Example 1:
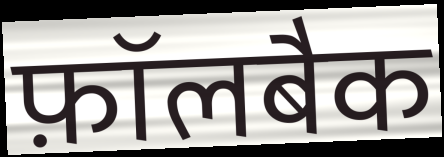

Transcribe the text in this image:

फ़ॉलबैक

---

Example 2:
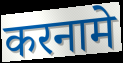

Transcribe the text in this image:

करनामे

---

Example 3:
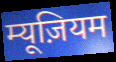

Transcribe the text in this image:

म्यूज़ियम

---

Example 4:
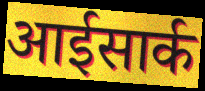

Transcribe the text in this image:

आईसार्क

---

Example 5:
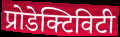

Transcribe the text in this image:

प्रोडेक्टिविटी